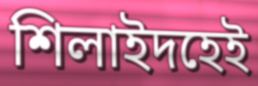
শিলাইদহেই